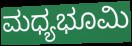
ಮಧ್ಯಭೂಮಿ